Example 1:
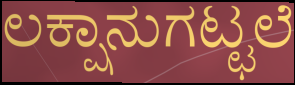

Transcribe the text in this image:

ಲಕ್ಷಾನುಗಟ್ಟಲೆ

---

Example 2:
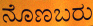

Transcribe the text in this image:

ನೊಣಬರು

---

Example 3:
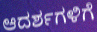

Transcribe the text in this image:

ಆದರ್ಶಗಳಿಗೆ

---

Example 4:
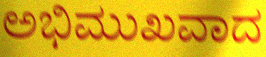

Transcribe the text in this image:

ಅಭಿಮುಖವಾದ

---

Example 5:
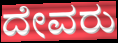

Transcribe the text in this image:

ದೇವರು